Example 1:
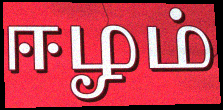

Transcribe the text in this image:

ஈழம்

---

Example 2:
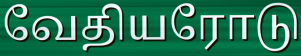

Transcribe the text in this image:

வேதியரோடு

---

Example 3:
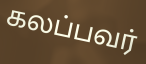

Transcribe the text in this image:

கலப்பவர்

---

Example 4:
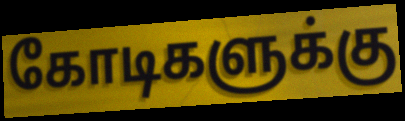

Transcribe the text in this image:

கோடிகளுக்கு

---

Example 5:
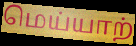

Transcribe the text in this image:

மெய்யாற்